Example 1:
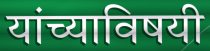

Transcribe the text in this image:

यांच्याविषयी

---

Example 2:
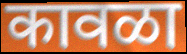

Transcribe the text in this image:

कावळा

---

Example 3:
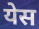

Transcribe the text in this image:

येस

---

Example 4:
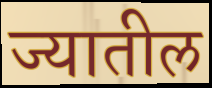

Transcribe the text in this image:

ज्यातील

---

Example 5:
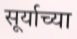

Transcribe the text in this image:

सूर्याच्या